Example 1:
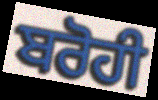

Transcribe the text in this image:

ਬਰੋਹੀ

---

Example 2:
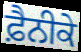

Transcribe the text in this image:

ਫ਼ੈਨੀਕੇ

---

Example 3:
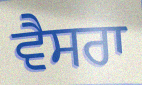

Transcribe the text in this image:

ਵੈਸਰਾ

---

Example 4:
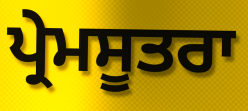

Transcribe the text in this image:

ਪ੍ਰੇਮਸੂਤਰਾ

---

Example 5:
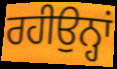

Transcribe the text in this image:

ਰਹੀਉਨ੍ਹਾਂ